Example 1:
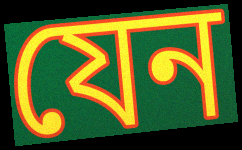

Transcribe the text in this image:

যেন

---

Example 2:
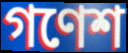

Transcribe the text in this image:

গণেশ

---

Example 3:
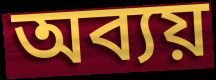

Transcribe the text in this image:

অব্যয়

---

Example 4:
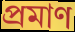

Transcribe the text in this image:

প্ৰমাণ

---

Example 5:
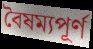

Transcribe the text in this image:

বৈষম্যপূৰ্ণ